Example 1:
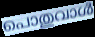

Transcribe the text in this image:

പൊതുവാൾ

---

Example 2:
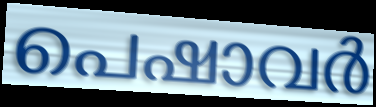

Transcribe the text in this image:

പെഷാവർ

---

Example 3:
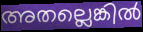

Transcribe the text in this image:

അതല്ലെങ്കിൽ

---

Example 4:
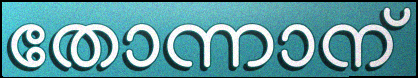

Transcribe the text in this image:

തോന്നാന്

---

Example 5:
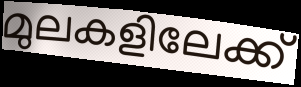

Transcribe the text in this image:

മുലകളിലേക്ക്